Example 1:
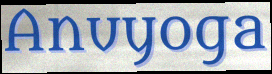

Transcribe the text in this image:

Anuyoga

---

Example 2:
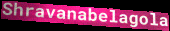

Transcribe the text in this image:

Shravanabelagola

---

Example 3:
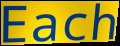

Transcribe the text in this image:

Each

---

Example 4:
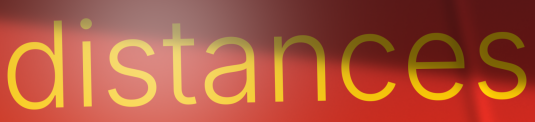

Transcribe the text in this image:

distances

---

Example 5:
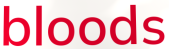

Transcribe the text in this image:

bloods